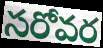
సరోవర